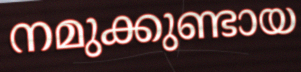
നമുക്കുണ്ടായ